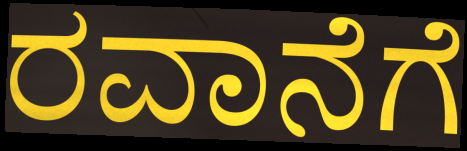
ರವಾನೆಗೆ